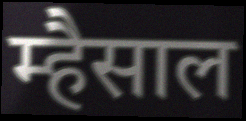
म्हैसाल